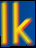
lk